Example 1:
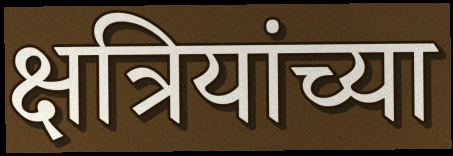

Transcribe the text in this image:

क्षत्रियांच्या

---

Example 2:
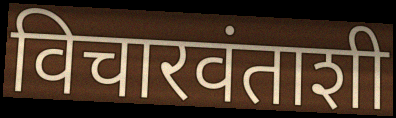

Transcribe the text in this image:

विचारवंताशी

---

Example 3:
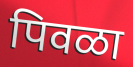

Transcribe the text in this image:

पिवळा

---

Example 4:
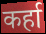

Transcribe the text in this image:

कर्हा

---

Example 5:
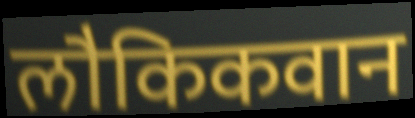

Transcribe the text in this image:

लौकिकवान